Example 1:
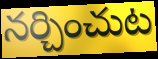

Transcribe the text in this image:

నర్చించుట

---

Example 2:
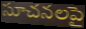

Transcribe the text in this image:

సూచనలపై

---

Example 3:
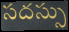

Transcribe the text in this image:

సదస్సు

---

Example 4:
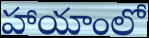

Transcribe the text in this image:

హాయాంలో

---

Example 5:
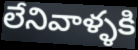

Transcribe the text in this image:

లేనివాళ్ళకి